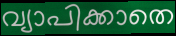
വ്യാപിക്കാതെ